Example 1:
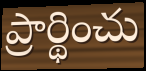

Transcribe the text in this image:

ప్రార్థించు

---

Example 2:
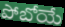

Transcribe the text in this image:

పోబోయే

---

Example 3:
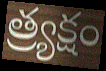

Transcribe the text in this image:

త్ర్యక్షం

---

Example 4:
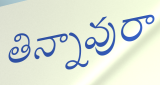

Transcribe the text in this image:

తిన్నావురా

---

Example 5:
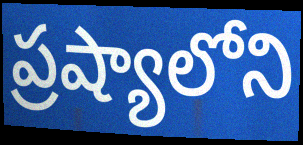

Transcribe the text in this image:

ప్రష్యాలోని